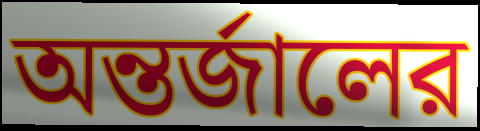
অন্তর্জালের